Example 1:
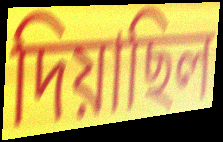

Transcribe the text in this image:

দিয়াছিল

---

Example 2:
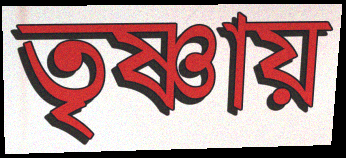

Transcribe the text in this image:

তৃষ্ণায়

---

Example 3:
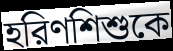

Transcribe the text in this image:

হরিণশিশুকে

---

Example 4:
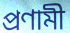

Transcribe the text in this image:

প্রণামী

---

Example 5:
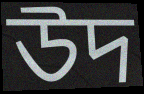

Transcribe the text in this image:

উদ